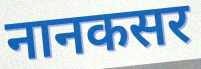
नानकसर